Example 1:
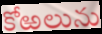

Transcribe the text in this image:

కోఱలును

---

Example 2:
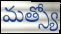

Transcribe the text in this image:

మత్స్యో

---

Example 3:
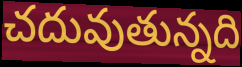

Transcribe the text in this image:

చదువుతున్నది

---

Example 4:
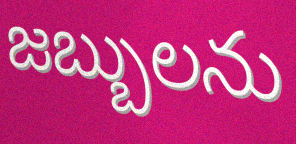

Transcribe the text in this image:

జబ్బులను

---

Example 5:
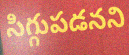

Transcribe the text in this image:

సిగ్గుపడనని